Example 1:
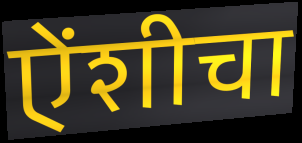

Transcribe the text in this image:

ऐंशीचा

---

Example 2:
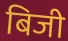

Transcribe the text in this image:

बिजी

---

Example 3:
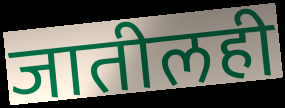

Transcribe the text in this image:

जातीलही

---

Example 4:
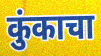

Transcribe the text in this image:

कुंकाचा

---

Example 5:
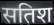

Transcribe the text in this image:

सतिश